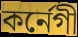
কর্নেগী